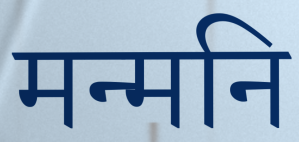
मन्मनि